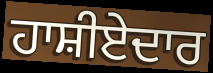
ਹਾਸ਼ੀਏਦਾਰ